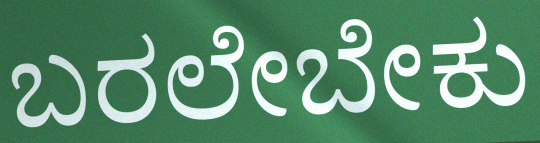
ಬರಲೇಬೇಕು